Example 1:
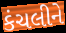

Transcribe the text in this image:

કંચલીને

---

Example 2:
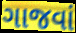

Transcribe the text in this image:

ગાજવાં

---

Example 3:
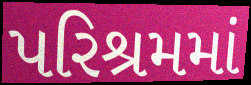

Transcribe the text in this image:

પરિશ્રમમાં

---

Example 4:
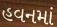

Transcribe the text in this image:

હવનમાં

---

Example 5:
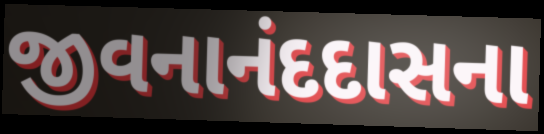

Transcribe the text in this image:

જીવનાનંદદાસના